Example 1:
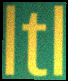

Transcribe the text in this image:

ltl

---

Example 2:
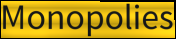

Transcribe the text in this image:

Monopolies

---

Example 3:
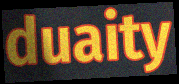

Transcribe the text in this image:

duaity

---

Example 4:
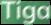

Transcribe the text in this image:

Tiga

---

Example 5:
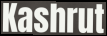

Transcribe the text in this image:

Kashrut